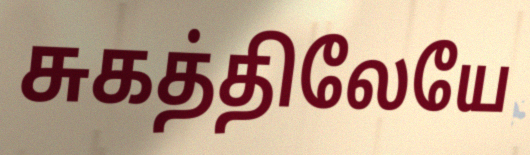
சுகத்திலேயே